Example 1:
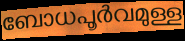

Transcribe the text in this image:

ബോധപൂർവമുള്ള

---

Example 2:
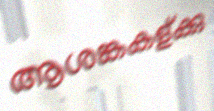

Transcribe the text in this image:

ആശങ്കകള്ക്കു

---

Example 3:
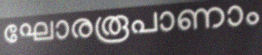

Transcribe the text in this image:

ഘോരരൂപാണാം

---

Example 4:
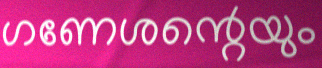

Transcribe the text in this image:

ഗണേശന്റെയും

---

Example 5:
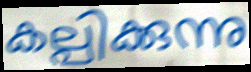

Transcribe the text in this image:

കല്പിക്കുന്നു